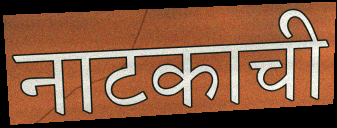
नाटकाची